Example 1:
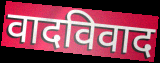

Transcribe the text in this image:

वादविवाद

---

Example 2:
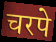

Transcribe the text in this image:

चरपे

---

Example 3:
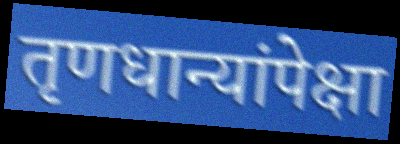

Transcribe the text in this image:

तृणधान्यांपेक्षा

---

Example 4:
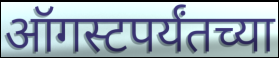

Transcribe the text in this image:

ऑगस्टपर्यंतच्या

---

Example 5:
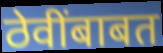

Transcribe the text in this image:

ठेवींबाबत